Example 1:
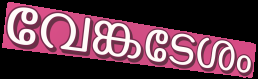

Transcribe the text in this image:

വേങ്കടേശം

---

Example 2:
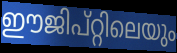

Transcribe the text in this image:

ഈജിപ്റ്റിലെയും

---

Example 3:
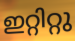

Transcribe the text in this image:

ഇറ്റിറ്റു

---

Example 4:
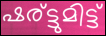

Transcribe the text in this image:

ഷര്ട്ടുമിട്ട്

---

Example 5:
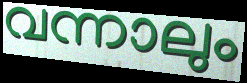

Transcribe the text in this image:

വന്നാലും